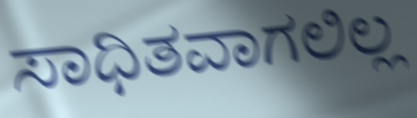
ಸಾಧಿತವಾಗಲಿಲ್ಲ